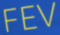
FEV